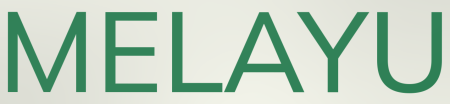
MELAYU